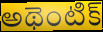
అథెంటిక్